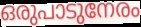
ഒരുപാടുനേരം